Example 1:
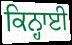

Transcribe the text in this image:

ਕਿਨ੍ਹਾਈ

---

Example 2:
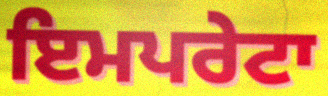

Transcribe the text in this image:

ਇਮਪਰੇਟਾ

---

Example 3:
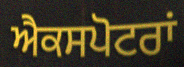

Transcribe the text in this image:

ਐਕਸਪੋਟਰਾਂ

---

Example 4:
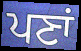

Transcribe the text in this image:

ਪਣਾਂ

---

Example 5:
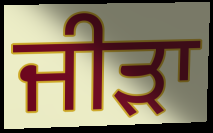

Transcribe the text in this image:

ਜੀੜਾ